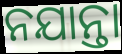
ନଯାନ୍ତା